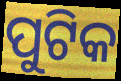
ପୁଟିକ